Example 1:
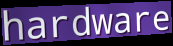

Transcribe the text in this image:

hardware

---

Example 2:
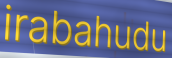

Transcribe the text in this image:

irabahudu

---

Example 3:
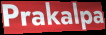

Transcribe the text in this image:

Prakalpa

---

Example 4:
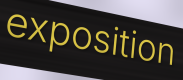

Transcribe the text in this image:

exposition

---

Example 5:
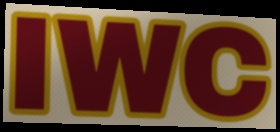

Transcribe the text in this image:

IWC